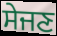
ਸੇਜਣ